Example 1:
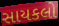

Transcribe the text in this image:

સાયકલો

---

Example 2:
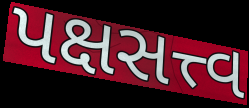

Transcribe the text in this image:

પક્ષસત્ત્વ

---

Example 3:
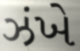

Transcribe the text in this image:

ઝંખે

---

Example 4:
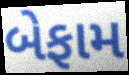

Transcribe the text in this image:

બેફામ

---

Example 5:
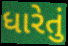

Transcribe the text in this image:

ધારેતું